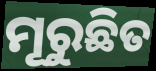
ମୂରୁଛିତ